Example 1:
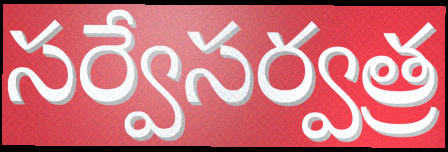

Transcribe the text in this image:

సర్వేసర్వత్ర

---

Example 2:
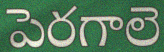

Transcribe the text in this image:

పెరగాలె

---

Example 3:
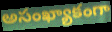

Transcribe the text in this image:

అసంఖ్యాకంగా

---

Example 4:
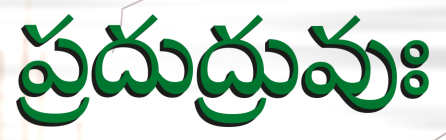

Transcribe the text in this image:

ప్రదుద్రువుః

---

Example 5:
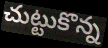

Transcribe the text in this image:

చుట్టుకొన్న